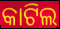
କାଟିଲ